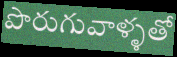
పొరుగువాళ్ళతో